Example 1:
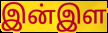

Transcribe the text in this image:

இன்இள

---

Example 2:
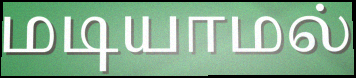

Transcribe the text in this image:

மடியாமல்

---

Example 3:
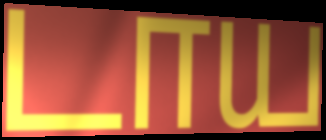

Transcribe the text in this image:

டாய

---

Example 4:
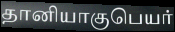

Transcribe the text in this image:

தானியாகுபெயர்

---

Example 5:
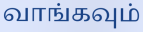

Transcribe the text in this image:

வாங்கவும்